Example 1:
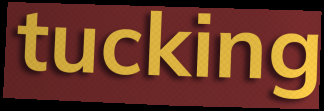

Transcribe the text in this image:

tucking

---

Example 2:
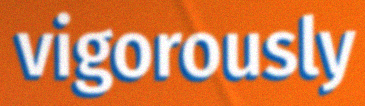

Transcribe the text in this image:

vigorously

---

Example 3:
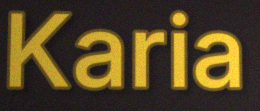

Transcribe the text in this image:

Karia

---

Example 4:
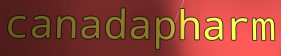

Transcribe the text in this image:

canadapharm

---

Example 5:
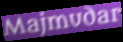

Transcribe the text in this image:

Majmudar